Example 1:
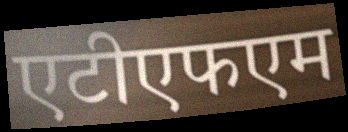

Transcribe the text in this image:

एटीएफएम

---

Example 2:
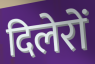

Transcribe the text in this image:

दिलेरों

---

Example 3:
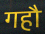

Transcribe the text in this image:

गहौ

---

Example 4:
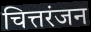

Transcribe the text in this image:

चित्तरंजन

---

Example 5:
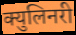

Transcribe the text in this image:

क्युलिनरी